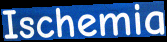
Ischemia